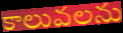
కాలువలను